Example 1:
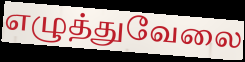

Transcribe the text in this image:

எழுத்துவேலை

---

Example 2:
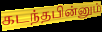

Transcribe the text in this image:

கடந்தபின்னும்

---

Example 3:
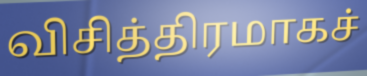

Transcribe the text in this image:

விசித்திரமாகச்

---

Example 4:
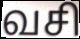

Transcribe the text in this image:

வசி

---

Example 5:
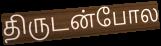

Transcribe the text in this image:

திருடன்போல